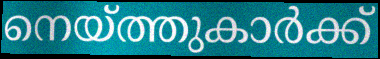
നെയ്ത്തുകാർക്ക്